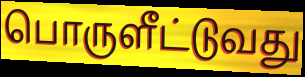
பொருளீட்டுவது